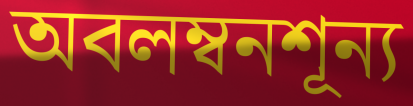
অবলম্বনশূন্য